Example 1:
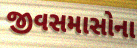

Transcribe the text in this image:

જીવસમાસોના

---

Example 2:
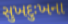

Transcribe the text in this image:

સુખદુઃખના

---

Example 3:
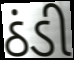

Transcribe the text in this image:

ઠંડી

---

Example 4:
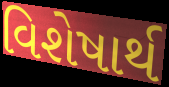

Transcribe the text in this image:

વિશેષાર્થ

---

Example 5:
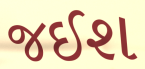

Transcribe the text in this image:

જઈશ